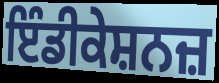
ਇੰਡੀਕੇਸ਼ਨਜ਼